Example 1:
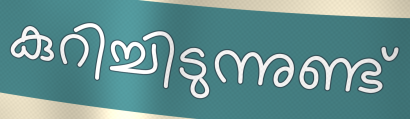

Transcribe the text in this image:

കുറിച്ചിടുന്നുണ്ട്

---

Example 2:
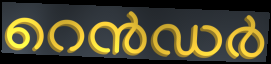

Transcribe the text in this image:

റെൻഡർ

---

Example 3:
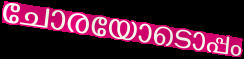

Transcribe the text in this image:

ചോരയോടൊപ്പം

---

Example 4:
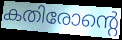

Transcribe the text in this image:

കതിരോന്റെ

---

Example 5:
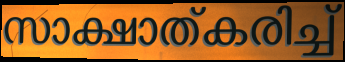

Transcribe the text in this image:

സാക്ഷാത്കരിച്ച്